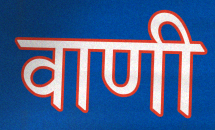
वाणी